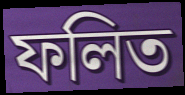
ফলিত